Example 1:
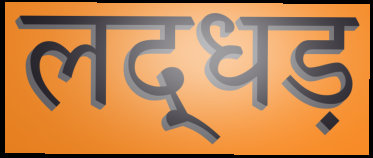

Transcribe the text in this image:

लद्धड़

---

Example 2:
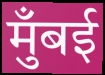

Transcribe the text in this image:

मुँबई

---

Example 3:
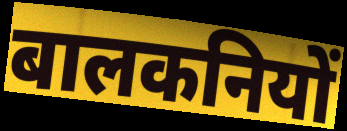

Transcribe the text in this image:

बालकनियों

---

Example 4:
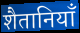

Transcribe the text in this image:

शैतानियाँ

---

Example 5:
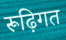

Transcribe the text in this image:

रूढ़िगत